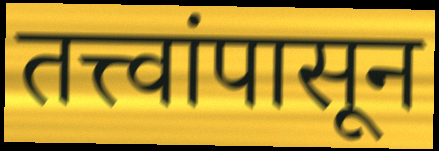
तत्त्वांपासून